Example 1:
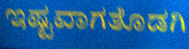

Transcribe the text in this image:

ಇಷ್ಟವಾಗತೊಡಗಿ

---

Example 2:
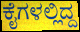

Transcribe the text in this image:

ಕೈಗಳಲ್ಲಿದ್ದ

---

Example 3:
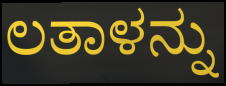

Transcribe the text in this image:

ಲತಾಳನ್ನು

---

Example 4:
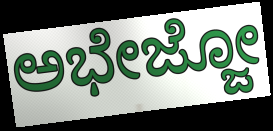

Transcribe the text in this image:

ಅಭೇಜ್ಜೋ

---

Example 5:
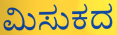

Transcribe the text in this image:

ಮಿಸುಕದ